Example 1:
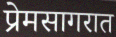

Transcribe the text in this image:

प्रेमसागरात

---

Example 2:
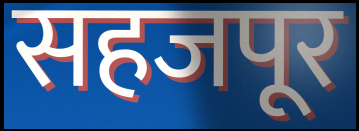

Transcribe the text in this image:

सहजपूर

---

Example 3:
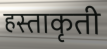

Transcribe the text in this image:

हस्ताकृती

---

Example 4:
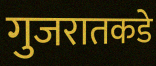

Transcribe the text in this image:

गुजरातकडे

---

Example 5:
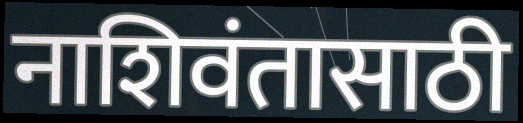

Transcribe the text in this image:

नाशिवंतासाठी